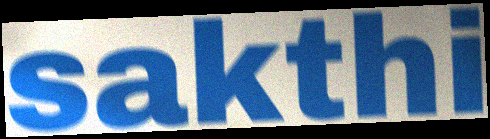
sakthi